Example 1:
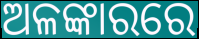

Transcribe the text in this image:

ଅଳଙ୍କାରରେ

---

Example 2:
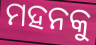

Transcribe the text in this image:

ମହନକୁ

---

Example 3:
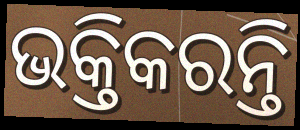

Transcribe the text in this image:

ଭକ୍ତିକରନ୍ତି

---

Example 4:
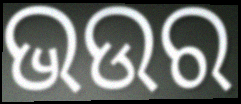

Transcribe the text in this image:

ଭଉର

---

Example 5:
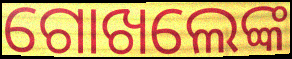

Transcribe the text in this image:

ଗୋଖଲେଙ୍କ